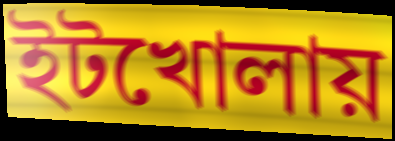
ইটখোলায়